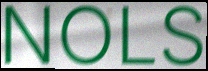
NOLS